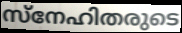
സ്നേഹിതരുടെ